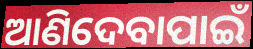
ଆଣିଦେବାପାଇଁ